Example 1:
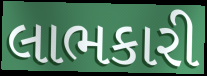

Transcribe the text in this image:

લાભકારી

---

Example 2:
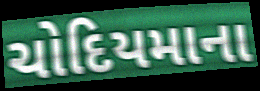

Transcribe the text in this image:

ચોદિયમાના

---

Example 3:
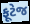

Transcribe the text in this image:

ફૂટેજ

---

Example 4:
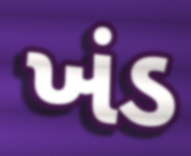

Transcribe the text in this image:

ખંડ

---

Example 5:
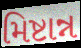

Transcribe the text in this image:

મિષ્ટાન્ન